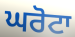
ਘਰੋਟਾ